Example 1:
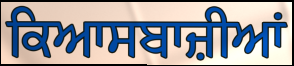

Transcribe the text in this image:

ਕਿਆਸਬਾਜ਼ੀਆਂ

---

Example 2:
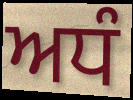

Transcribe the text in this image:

ਅਧੰ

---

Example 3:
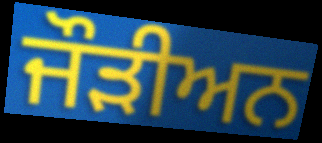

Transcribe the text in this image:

ਜੌੜੀਅਨ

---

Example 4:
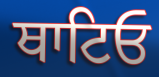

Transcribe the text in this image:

ਥਾਟਿਓ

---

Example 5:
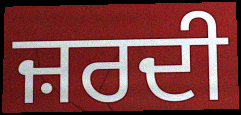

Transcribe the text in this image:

ਜ਼ਰਦੀ